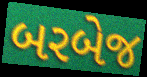
બરબેજ